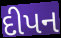
દીપન